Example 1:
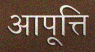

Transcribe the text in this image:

आपूत्ति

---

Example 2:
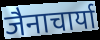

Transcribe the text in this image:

जैनाचार्या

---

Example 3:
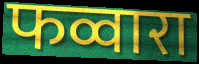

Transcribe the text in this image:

फव्वारा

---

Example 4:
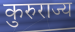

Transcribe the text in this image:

कुरुराज्य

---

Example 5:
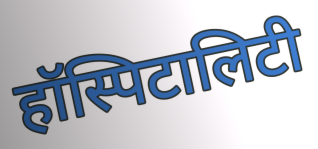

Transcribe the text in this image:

हॉस्पिटालिटी